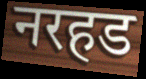
नरहड